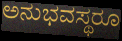
ಅನುಭವಸ್ಥರೂ